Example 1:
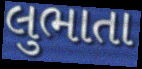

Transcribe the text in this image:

લુભાતા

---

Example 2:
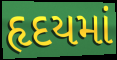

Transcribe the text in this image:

હૃદયમાં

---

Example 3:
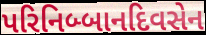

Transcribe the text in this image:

પરિનિબ્બાનદિવસેન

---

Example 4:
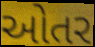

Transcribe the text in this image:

ઓતર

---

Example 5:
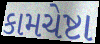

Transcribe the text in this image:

કામચેષ્ટા